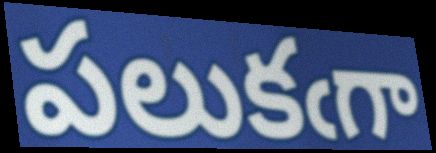
పలుకఁగా